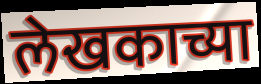
लेखकाच्या